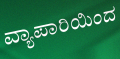
ವ್ಯಾಪಾರಿಯಿಂದ